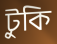
টুকি